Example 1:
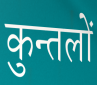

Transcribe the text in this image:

कुन्तलों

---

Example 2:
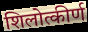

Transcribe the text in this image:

शिलोत्कीर्ण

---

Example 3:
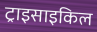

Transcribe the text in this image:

ट्राइसाइकिल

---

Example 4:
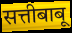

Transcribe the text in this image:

सत्तीबाबू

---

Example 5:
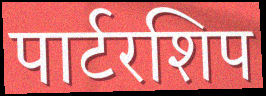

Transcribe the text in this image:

पार्टरशिप